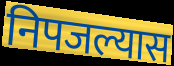
निपजल्यास